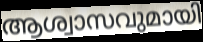
ആശ്വാസവുമായി